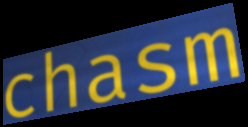
chasm